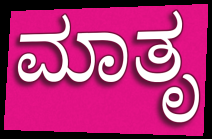
ಮಾತೃ